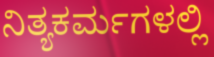
ನಿತ್ಯಕರ್ಮಗಳಲ್ಲಿ